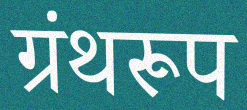
ग्रंथरूप